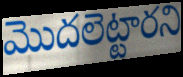
మొదలెట్టారని